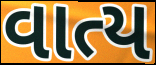
વાત્ય